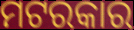
ମଟରକାର